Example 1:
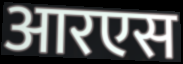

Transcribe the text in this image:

आरएस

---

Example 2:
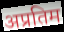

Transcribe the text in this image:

अप्रतिम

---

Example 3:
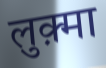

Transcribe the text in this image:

लुक़्मा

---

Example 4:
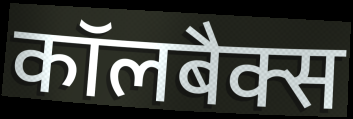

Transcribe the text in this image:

कॉलबैक्स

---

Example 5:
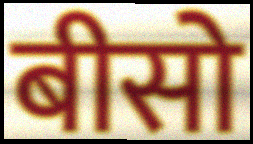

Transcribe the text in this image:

बीसो